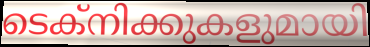
ടെക്നിക്കുകളുമായി